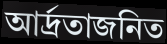
আর্দ্রতাজনিত